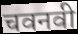
चवनवी